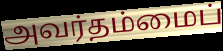
அவர்தம்மைப்